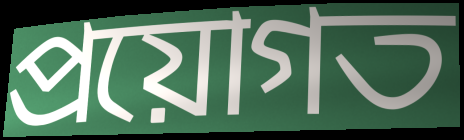
প্ৰয়োগত